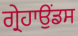
ਗ੍ਰੇਹਾਉਂਡਸ